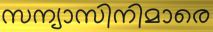
സന്യാസിനിമാരെ